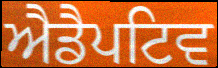
ਐਡੈਪਟਿਵ